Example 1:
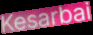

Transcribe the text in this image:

Kesarbai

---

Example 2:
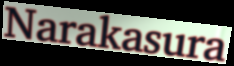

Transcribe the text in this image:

Narakasura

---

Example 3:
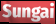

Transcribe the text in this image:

Sungai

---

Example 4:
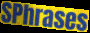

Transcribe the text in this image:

SPhrases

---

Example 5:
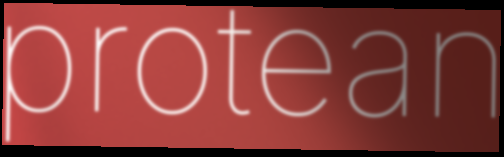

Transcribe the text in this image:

protean